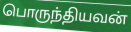
பொருந்தியவன்